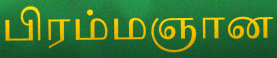
பிரம்மஞான